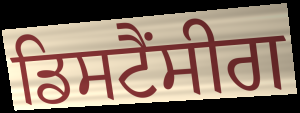
ਡਿਸਟੈਂਸੀਗ